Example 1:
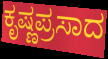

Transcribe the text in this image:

ಕೃಷ್ಣಪ್ರಸಾದ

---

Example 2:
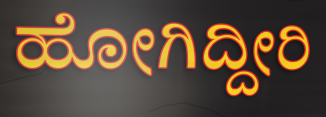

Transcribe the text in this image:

ಹೋಗಿದ್ದೀರಿ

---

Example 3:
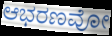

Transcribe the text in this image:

ಆಭರಣವೋ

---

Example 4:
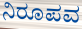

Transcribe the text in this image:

ನಿರೂಪವ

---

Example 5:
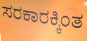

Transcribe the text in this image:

ಸರಕಾರಕ್ಕಿಂತ